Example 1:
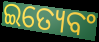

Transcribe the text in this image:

ଇତ୍ୟେବଂ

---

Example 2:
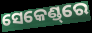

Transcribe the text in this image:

ସେକେଣ୍ଡ୍‌ରେ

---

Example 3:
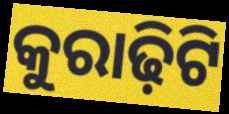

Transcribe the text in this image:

କୁରାଢ଼ିଟି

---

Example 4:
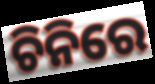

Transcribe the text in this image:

ଚିନିରେ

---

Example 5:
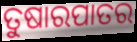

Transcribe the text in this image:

ତୁଷାରପାତର